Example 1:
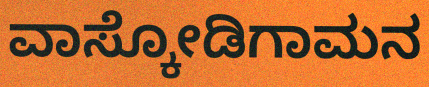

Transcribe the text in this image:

ವಾಸ್ಕೋಡಿಗಾಮನ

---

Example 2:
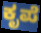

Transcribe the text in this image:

ಕೃಪೆ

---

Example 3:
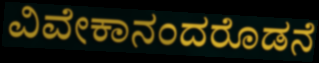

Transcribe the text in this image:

ವಿವೇಕಾನಂದರೊಡನೆ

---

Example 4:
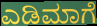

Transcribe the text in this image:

ಎಡಿಮಾಗೆ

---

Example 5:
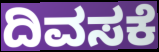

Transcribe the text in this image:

ದಿವಸಕೆ